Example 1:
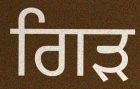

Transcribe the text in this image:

ਗਿੜ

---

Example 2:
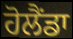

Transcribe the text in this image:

ਹੋਲੈਂਡਾ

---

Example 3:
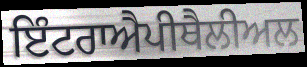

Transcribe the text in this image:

ਇੰਟਰਾਐਪੀਥੈਲੀਅਲ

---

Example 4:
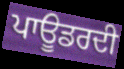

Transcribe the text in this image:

ਪਾਊਡਰਦੀ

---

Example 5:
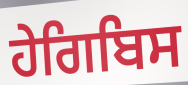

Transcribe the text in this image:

ਹੇਗਿਬਿਸ